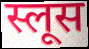
स्लूस